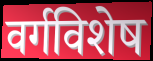
वर्गविशेष